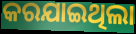
କରଯାଇଥିଲା